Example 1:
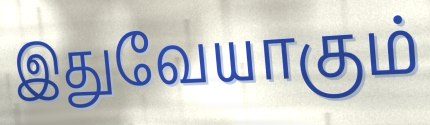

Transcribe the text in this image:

இதுவேயாகும்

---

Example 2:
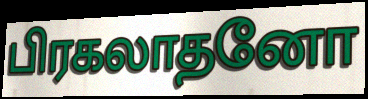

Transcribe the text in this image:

பிரகலாதனோ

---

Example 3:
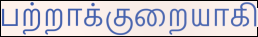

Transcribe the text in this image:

பற்றாக்குறையாகி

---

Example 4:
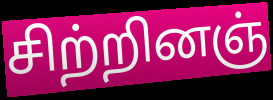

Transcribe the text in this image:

சிற்றினஞ்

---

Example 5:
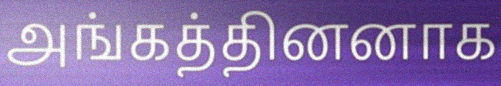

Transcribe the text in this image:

அங்கத்தினனாக